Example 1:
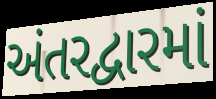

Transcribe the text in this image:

અંતરદ્વારમાં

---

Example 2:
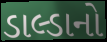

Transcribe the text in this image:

ડાલ્ડાનો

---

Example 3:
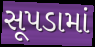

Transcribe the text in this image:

સૂપડામાં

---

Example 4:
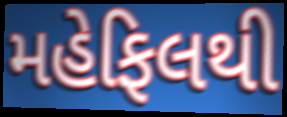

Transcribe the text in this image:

મહેફિલથી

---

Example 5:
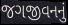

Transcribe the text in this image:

જગજીવનનું